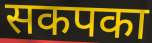
सकपका